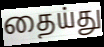
தைய்து